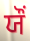
ਯੌਂ